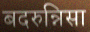
बदरुन्निसा